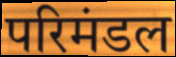
परिमंडल